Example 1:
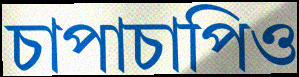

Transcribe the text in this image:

চাপাচাপিও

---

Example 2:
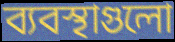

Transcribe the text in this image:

ব্যবস্থাগুলো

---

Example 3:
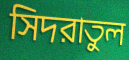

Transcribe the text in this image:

সিদরাতুল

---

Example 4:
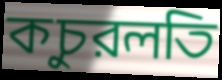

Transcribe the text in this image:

কচুরলতি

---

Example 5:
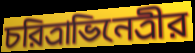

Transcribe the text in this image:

চরিত্রাভিনেত্রীর